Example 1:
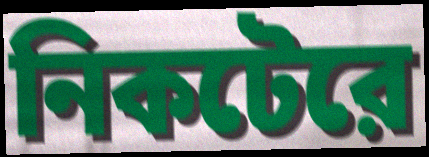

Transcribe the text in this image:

নিকটেরে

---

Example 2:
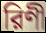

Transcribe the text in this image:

রিণী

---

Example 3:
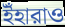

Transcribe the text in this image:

ইঁহারাও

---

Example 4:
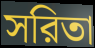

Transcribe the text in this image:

সরিতা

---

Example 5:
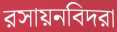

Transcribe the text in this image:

রসায়নবিদরা